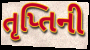
તૃપ્તિની